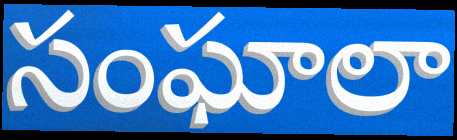
సంఘాలా